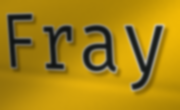
Fray